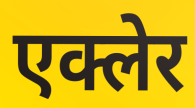
एक्लेर